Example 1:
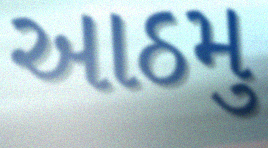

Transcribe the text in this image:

આઠમુ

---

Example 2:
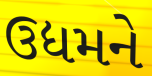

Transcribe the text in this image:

ઉદ્યમને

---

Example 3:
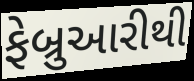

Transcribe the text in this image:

ફેબ્રુઆરીથી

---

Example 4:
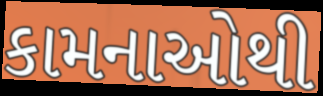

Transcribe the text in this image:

કામનાઓથી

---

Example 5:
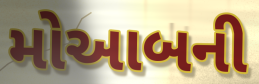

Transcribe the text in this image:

મોઆબની